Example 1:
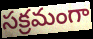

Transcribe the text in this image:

సక్రమంగా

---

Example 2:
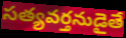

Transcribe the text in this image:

సత్యవర్తనుడైతే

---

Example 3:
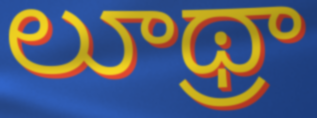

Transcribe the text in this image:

లూథ్రా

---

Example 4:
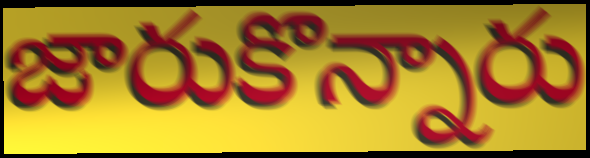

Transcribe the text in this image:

జారుకొన్నారు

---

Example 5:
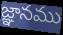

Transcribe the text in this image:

జ్ఞానము